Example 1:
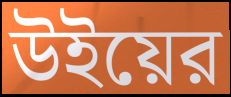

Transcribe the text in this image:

উইয়ের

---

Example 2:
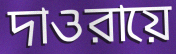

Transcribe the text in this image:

দাওরায়ে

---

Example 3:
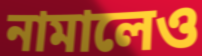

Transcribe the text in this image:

নামালেও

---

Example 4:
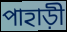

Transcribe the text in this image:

পাহাড়ী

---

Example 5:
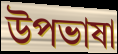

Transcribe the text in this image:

উপভাষা